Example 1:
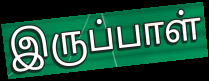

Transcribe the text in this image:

இருப்பாள்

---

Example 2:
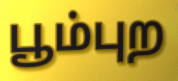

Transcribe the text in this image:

பூம்புற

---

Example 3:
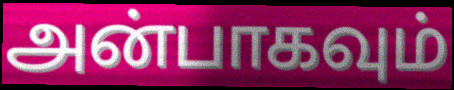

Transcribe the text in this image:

அன்பாகவும்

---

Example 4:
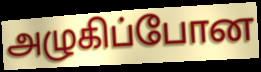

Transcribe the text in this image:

அழுகிப்போன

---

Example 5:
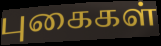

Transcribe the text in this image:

புகைகள்